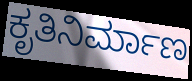
ಕೃತಿನಿರ್ಮಾಣ